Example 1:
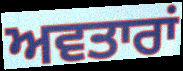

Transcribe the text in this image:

ਅਵਤਾਰਾਂ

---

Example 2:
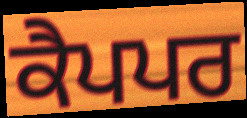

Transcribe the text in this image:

ਕੈਪਪਰ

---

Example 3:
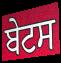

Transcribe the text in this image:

ਬੇਟਸ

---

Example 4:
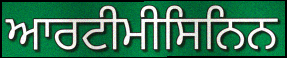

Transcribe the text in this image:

ਆਰਟੀਮੀਸਿਨਿਨ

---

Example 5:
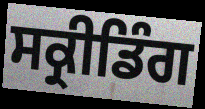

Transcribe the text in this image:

ਸਕ੍ਰੀਡਿੰਗ